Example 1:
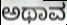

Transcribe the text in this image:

ಅಥಾವ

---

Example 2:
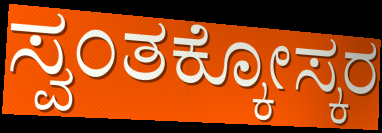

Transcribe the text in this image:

ಸ್ವಂತಕ್ಕೋಸ್ಕರ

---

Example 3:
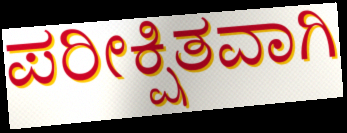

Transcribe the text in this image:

ಪರೀಕ್ಷಿತವಾಗಿ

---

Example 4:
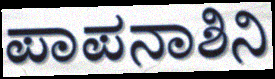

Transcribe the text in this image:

ಪಾಪನಾಶಿನಿ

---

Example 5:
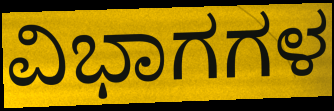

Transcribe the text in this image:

ವಿಭಾಗಗಳ